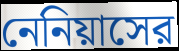
নেনিয়াসের